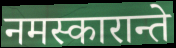
नमस्कारान्ते